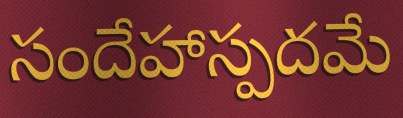
సందేహాస్పదమే